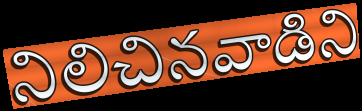
నిలిచినవాడిని